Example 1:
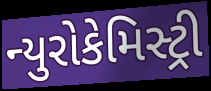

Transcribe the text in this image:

ન્યુરોકેમિસ્ટ્રી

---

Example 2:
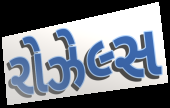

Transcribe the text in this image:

રોઝેલ્સ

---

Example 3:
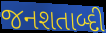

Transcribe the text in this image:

જનશતાબ્દી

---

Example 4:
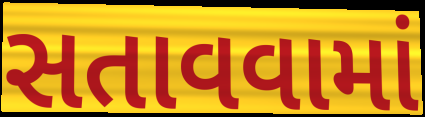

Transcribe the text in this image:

સતાવવામાં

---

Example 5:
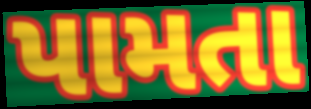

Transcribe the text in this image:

પામતા